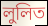
লুলিত